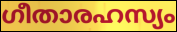
ഗീതാരഹസ്യം